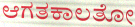
ಆಗತಕಾಲತೋ